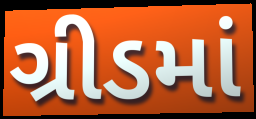
ગ્રીડમાં